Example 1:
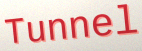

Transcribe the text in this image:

Tunnel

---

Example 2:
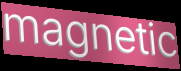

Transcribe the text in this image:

magnetic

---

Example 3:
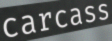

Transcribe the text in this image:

carcass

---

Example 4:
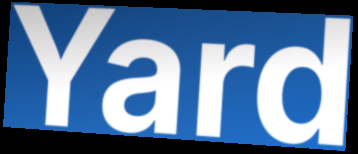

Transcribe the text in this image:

Yard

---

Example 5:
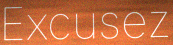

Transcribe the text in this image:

Excusez